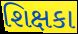
શિક્ષકા